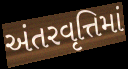
અંતરવૃત્તિમાં